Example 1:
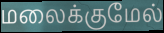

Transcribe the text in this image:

மலைக்குமேல்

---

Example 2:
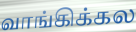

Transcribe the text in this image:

வாங்கிக்கல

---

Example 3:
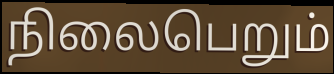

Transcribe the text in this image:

நிலைபெறும்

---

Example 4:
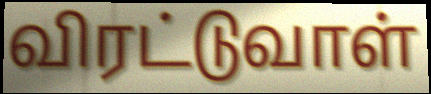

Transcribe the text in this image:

விரட்டுவாள்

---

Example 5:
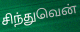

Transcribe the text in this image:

சிந்துவென்